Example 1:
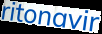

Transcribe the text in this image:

ritonavir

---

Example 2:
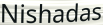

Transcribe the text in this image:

Nishadas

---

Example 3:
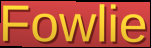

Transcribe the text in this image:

Fowlie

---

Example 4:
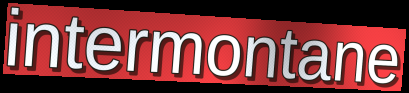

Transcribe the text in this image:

intermontane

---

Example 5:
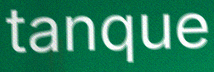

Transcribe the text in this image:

tanque